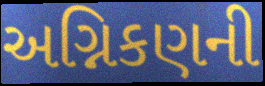
અગ્નિકણની